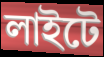
লাইটে